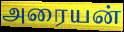
அரையன்